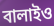
বালাইও